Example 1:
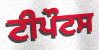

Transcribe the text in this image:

ਟੀਪੌਟਸ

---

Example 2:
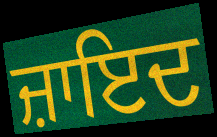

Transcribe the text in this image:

ਜ਼ਾਇਦ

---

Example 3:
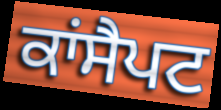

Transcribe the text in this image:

ਕਾਂਸੈਪਟ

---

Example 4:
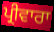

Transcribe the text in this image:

ਪ੍ਰੀਵਾਰਾ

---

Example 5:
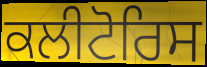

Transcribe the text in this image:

ਕਲੀਟੋਰਿਸ